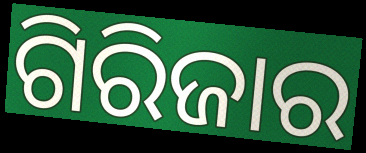
ଗିରିଜାର